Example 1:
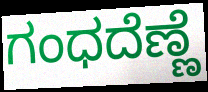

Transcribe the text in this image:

ಗಂಧದೆಣ್ಣೆ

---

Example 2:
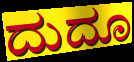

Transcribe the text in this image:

ದುದೂ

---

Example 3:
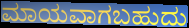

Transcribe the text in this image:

ಮಾಯವಾಗಬಹುದು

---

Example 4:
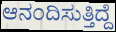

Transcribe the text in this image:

ಆನಂದಿಸುತ್ತಿದ್ದೆ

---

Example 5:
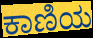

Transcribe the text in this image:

ಕಾಣಿಯ